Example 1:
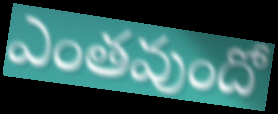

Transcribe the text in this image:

ఎంతవుందో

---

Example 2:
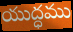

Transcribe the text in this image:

యుద్ధము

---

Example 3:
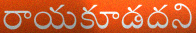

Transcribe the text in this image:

రాయకూడదని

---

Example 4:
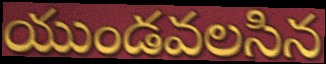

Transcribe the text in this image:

యుండవలసిన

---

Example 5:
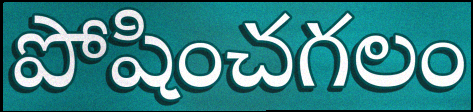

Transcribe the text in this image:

పోషించగలం